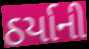
ઠર્યાની